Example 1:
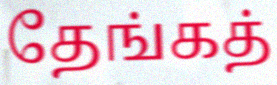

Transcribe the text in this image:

தேங்கத்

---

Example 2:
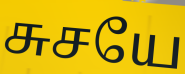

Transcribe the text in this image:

சுசயே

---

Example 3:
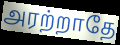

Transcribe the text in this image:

அரற்றாதே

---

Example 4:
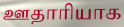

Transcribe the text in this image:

ஊதாரியாக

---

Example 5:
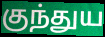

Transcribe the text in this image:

குந்துய